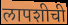
लापशीची